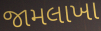
જામલાખા